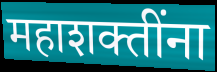
महाशक्तींना